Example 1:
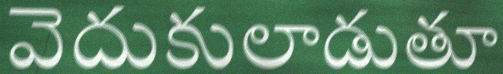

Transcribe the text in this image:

వెదుకులాడుతూ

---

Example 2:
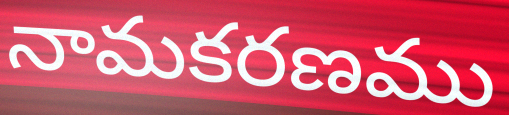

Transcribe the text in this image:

నామకరణము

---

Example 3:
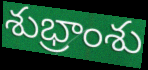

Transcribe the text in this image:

శుభ్రాంశు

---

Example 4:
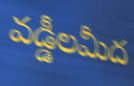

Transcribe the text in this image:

వడ్డీలమీద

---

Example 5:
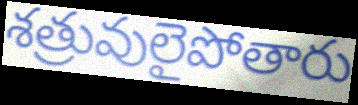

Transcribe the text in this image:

శత్రువులైపోతారు